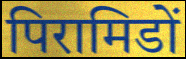
पिरामिडों